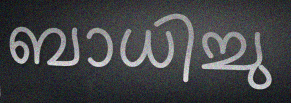
ബാധിച്ചു